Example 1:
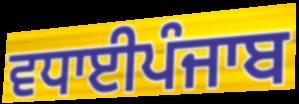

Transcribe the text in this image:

ਵਧਾਈਪੰਜਾਬ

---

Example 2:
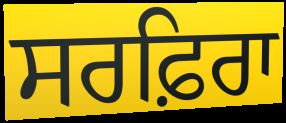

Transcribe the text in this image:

ਸਰਫ਼ਿਰਾ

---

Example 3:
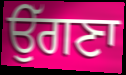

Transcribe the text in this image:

ਉੱਗਣਾ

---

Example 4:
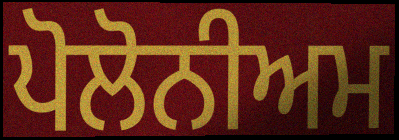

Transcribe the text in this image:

ਪੋਲੋਨੀਅਮ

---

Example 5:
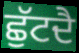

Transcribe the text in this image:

ਛੁੱਟਦੈ